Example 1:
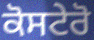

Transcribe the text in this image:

ਕੋਸਟੇਰੋ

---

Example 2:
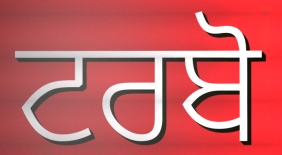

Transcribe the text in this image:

ਟਰਬੋ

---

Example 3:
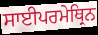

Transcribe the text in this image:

ਸਾਈਪਰਮੇਥ੍ਰਿਨ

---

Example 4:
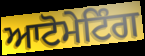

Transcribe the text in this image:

ਆਟੋਮੇਟਿੰਗ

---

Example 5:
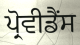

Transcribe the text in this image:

ਪ੍ਰੋਵੀਡੈਂਸ